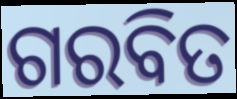
ଗରବିତ